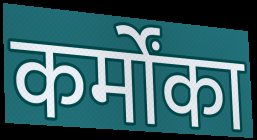
कर्मोंका